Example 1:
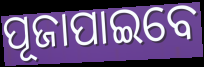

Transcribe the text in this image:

ପୂଜାପାଇବେ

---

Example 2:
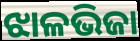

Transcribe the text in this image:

ଝାଳଭିଜା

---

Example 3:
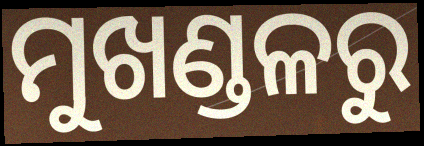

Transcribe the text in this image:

ମୁଖଣ୍ଡଳରୁ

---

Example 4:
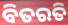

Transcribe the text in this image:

ବିତରତି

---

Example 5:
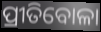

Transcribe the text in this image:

ପ୍ରୀତିବୋଳା